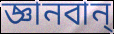
জ্ঞানবান্